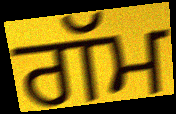
ਗੱਮ